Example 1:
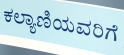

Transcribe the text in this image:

ಕಲ್ಯಾಣಿಯವರಿಗೆ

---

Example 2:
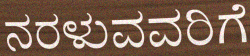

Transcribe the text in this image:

ನರಳುವವರಿಗೆ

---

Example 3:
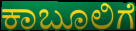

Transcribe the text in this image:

ಕಾಬೂಲಿಗೆ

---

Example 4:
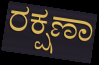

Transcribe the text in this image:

ರಕ್ಷಣಾ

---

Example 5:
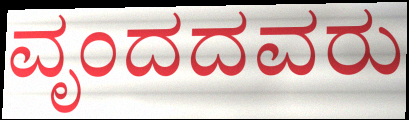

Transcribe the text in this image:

ವೃಂದದವರು